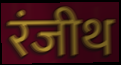
रंजीथ